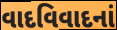
વાદવિવાદનાં